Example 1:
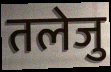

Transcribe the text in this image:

तलेजु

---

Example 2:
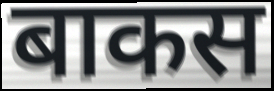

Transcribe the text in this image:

बाकस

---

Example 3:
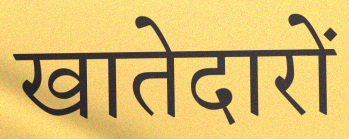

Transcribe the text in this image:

खातेदारों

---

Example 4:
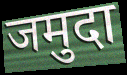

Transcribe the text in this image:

जमुदा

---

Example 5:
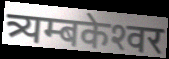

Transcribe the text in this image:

त्र्यम्बकेश्वर